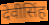
देवीसिंह